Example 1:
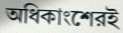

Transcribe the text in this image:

অধিকাংশেরই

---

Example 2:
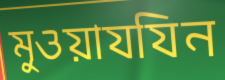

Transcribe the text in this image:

মুওয়াযযিন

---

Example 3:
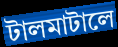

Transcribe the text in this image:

টালমাটালে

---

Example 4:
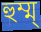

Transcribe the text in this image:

হুম্ম্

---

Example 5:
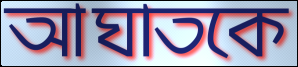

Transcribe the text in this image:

আঘাতকে